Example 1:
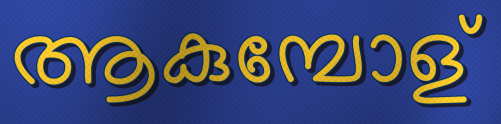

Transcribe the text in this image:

ആകുമ്പോള്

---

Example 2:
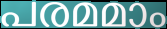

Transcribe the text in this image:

പരമമാം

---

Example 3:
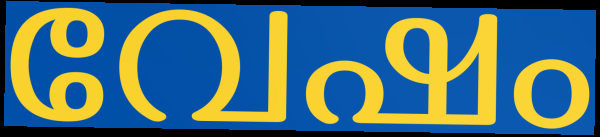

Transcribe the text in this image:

വേഷം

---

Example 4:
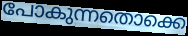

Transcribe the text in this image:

പോകുന്നതൊക്കെ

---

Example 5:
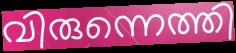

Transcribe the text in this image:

വിരുന്നെത്തി